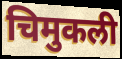
चिमुकली